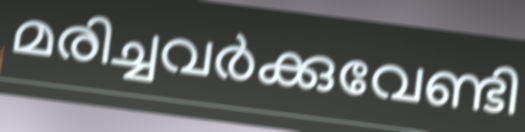
മരിച്ചവർക്കുവേണ്ടി